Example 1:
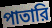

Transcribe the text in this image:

পাতারি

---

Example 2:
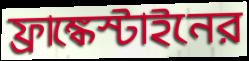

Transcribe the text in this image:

ফ্রাঙ্কেস্টাইনের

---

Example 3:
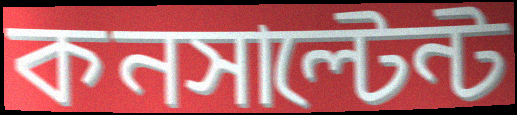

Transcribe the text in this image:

কনসাল্টেন্ট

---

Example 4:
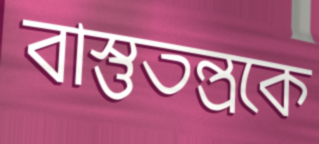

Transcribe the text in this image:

বাস্তুতন্ত্রকে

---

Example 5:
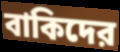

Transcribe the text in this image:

বাকিদের